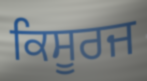
ਕਿਸੂਰਜ